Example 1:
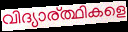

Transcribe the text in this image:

വിദ്യാര്ത്ഥികളെ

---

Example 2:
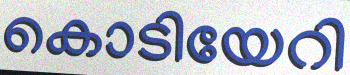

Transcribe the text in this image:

കൊടിയേറി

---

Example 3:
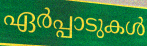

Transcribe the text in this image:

ഏർപ്പാടുകൾ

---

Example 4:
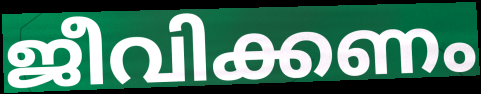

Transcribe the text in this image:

ജീവിക്കണം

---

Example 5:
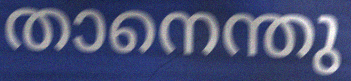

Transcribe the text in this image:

താനെന്തു